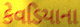
કેવડિયાના